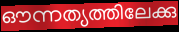
ഔന്നത്യത്തിലേക്കു